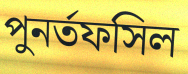
পুনর্তফসিল